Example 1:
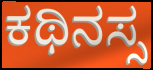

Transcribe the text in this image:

ಕಥಿನಸ್ಸ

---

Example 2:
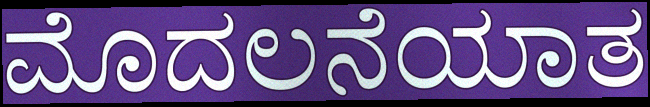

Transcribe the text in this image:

ಮೊದಲನೆಯಾತ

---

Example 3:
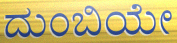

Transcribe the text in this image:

ದುಂಬಿಯೇ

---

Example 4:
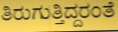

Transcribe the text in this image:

ತಿರುಗುತ್ತಿದ್ದರಂತೆ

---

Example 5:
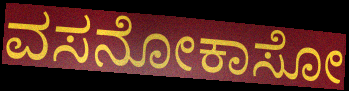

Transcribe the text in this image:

ವಸನೋಕಾಸೋ